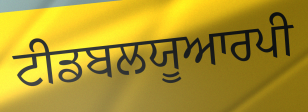
ਟੀਡਬਲਯੂਆਰਪੀ